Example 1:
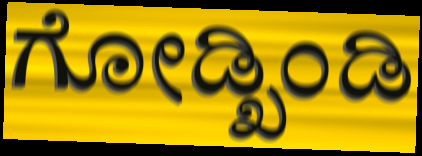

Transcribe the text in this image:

ಗೋಡ್ಖಿಂಡಿ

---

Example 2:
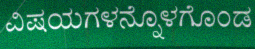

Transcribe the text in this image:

ವಿಷಯಗಳನ್ನೊಳಗೊಂಡ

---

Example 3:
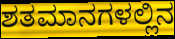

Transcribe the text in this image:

ಶತಮಾನಗಳಲ್ಲಿನ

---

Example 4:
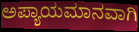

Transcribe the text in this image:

ಅಪ್ಯಾಯಮಾನವಾಗಿ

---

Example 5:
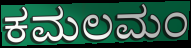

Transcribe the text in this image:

ಕಮಲಮಂ